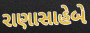
રાણાસાહેબે